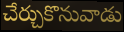
చేర్చుకొనువాడు